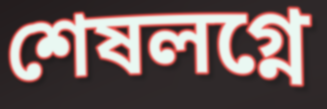
শেষলগ্নে